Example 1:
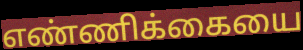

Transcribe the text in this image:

எண்ணிக்கையை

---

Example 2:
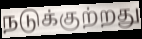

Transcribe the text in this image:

நடுக்குற்றது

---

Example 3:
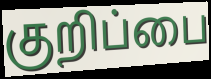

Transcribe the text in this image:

குறிப்பை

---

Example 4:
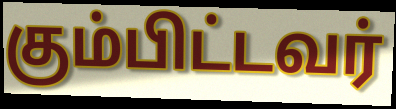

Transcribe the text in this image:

கும்பிட்டவர்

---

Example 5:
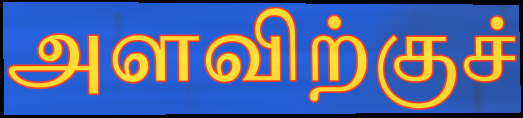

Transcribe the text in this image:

அளவிற்குச்